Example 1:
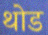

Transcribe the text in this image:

थोड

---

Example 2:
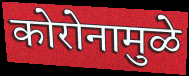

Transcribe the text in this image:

कोरोनामुळे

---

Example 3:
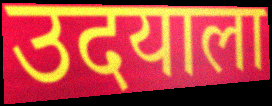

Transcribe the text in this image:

उदयाला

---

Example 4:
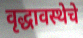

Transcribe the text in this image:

वृद्धावस्थेचे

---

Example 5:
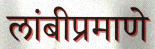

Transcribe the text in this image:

लांबीप्रमाणे